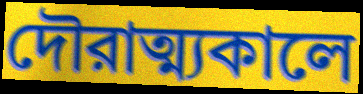
দৌরাত্ম্যকালে